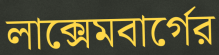
লাক্সেমবার্গের